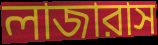
লাজারাস